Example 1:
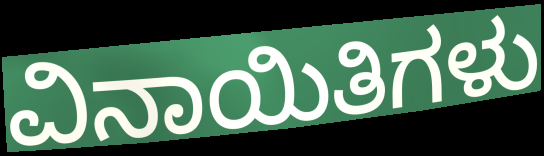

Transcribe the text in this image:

ವಿನಾಯಿತಿಗಳು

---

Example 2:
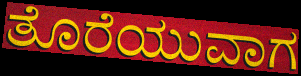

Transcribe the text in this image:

ತೊರೆಯುವಾಗ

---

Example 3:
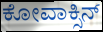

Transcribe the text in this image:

ಕೋವಾಕ್ಸಿನ್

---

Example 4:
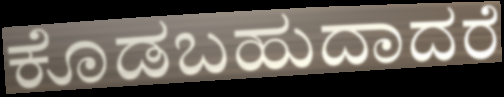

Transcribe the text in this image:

ಕೊಡಬಹುದಾದರೆ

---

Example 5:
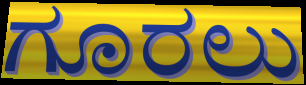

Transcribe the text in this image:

ಗೂರಲು